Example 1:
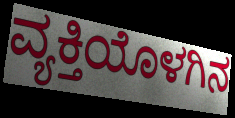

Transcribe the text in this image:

ವ್ಯಕ್ತಿಯೊಳಗಿನ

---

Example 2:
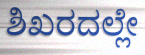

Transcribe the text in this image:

ಶಿಖರದಲ್ಲೇ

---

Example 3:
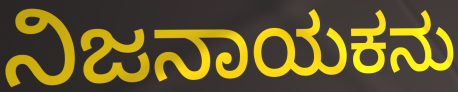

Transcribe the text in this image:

ನಿಜನಾಯಕನು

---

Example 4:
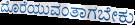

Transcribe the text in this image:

ದೊರೆಯುವಂತಾಗಬೇಕು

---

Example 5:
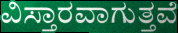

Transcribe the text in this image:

ವಿಸ್ತಾರವಾಗುತ್ತವೆ